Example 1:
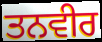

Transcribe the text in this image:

ਤਨਵੀਰ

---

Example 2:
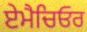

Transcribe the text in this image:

ਏਮੈਚਿਓਰ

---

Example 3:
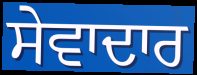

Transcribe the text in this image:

ਸੇਵਾਦਾਰ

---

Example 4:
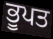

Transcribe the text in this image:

ਭੂਪਤ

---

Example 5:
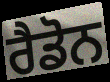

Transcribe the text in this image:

ਰੈਡੋਨ